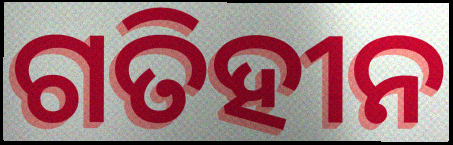
ଗତିହୀନ